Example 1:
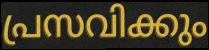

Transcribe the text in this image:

പ്രസവിക്കും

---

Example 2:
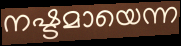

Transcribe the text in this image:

നഷ്ടമായെന്ന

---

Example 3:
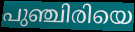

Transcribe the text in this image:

പുഞ്ചിരിയെ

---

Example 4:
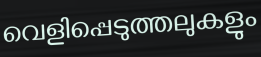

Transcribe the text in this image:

വെളിപ്പെടുത്തലുകളും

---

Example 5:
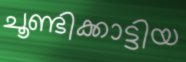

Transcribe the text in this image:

ചൂണ്ടിക്കാട്ടിയ